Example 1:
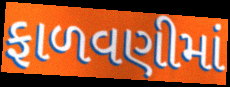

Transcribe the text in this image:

ફાળવણીમાં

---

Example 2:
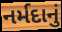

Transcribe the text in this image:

નર્મદાનું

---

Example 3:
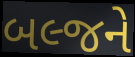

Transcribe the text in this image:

બલ્જને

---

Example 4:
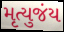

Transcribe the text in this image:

મૃત્યુજંય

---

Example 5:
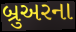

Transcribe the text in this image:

બ્રુઅરના